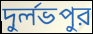
দুর্লভপুর